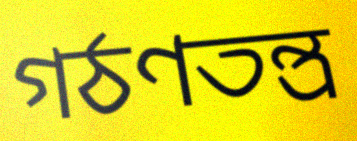
গঠণতন্ত্র